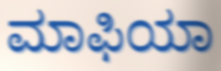
ಮಾಫಿಯಾ